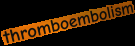
thromboembolism